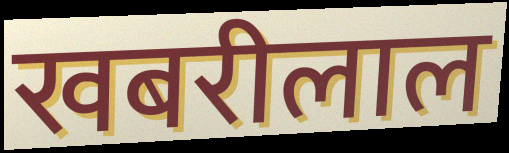
खबरीलाल